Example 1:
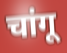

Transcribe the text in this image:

चांगू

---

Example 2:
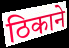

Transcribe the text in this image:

ठिकाने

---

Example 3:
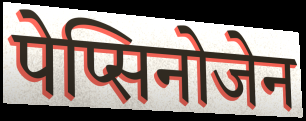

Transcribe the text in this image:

पेप्सिनोजेन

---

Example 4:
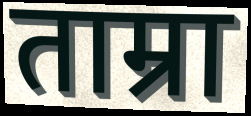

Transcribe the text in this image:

ताम्रा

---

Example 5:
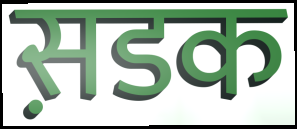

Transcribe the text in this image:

स़डक